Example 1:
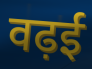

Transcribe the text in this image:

वढ़ई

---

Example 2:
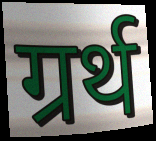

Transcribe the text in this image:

ग्रर्थ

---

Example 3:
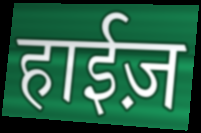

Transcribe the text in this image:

हाईज़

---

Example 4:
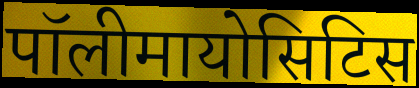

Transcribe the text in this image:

पॉलीमायोसिटिस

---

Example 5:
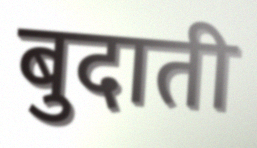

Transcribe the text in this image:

बुदाती